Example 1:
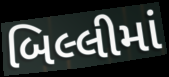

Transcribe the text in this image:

બિલ્લીમાં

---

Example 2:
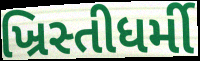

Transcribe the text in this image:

ખ્રિસ્તીધર્મી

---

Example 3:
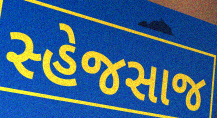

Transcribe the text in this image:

સ્હેજસાજ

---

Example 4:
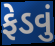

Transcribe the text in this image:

ફેડવું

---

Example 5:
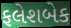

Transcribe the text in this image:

ફલેશબેક